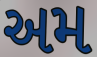
અમ